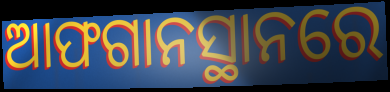
ଆଫଗାନସ୍ଥାନରେ